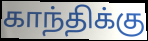
காந்திக்கு